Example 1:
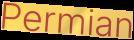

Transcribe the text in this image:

Permian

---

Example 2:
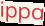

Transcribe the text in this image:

ippa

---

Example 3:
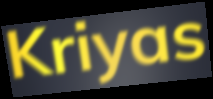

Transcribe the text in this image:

Kriyas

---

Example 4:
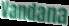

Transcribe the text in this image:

Vandana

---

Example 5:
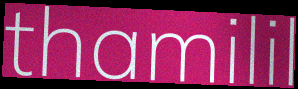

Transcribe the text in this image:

thamilil